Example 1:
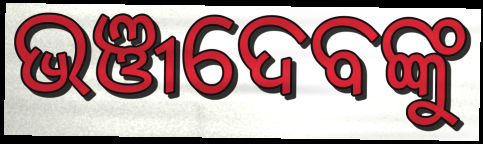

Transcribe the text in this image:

ଭଞ୍ଜଦେବଙ୍କୁ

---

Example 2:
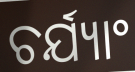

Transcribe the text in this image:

ଚର୍ଯ୍ୟାଂ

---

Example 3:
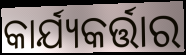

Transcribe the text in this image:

କାର୍ଯ୍ୟକର୍ତ୍ତାର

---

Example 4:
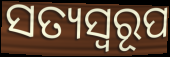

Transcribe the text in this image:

ସତ୍ୟସ୍ୱରୂପ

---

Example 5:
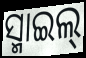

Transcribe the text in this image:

ସ୍ମାଇଲ୍